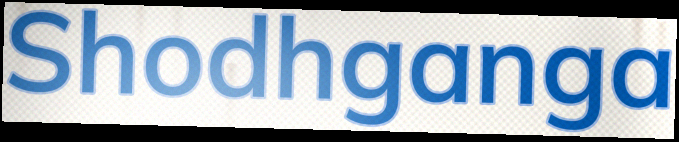
Shodhganga